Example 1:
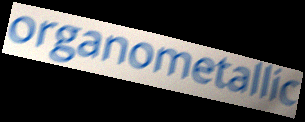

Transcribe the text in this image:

organometallic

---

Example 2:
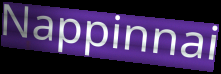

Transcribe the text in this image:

Nappinnai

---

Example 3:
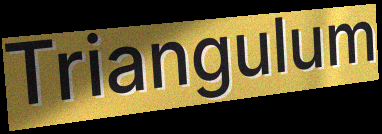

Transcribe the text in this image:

Triangulum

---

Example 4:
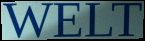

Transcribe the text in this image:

WELT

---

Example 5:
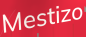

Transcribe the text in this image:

Mestizo